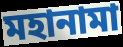
মহানামা